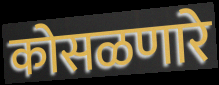
कोसळणारे